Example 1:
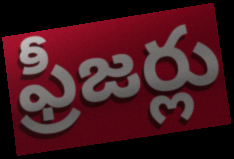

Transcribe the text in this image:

ఫ్రీజర్లు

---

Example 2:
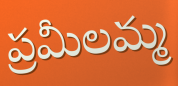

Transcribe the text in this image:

ప్రమీలమ్మ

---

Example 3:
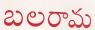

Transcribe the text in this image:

బలరామ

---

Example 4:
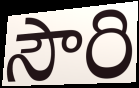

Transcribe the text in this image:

సౌరి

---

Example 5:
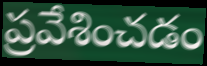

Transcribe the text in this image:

ప్రవేశించడం